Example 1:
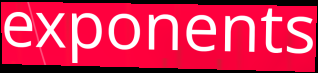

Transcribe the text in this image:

exponents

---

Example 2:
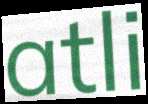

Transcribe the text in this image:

atli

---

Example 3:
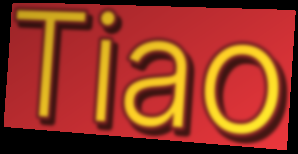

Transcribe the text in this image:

Tiao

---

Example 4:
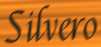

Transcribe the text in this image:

Silvero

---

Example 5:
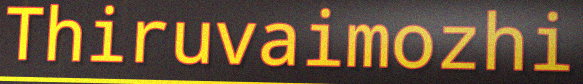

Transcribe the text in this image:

Thiruvaimozhi